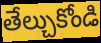
తేల్చుకోండి